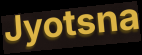
Jyotsna